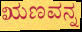
ಋಣವನ್ನ